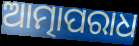
ଆତ୍ମାପରାଧ